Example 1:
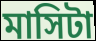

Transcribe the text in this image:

মাসিটা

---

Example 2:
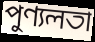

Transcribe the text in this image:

পুণ্যলতা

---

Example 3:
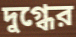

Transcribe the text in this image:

দুগ্ধের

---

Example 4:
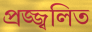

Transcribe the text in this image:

প্রজ্জ্বলিত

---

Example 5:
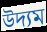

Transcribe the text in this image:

উদ্যম